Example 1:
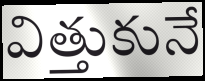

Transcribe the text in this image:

విత్తుకునే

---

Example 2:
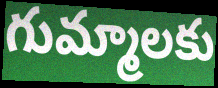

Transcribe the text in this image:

గుమ్మాలకు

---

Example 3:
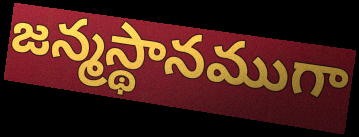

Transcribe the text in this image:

జన్మస్థానముగా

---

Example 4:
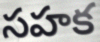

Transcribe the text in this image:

సహక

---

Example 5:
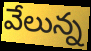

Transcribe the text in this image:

వేలున్న